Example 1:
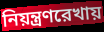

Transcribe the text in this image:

নিয়ন্ত্রণরেখায়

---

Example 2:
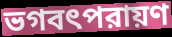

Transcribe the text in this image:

ভগবৎপরায়ণ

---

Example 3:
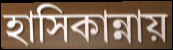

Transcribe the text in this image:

হাসিকান্নায়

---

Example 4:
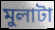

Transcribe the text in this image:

মুলাটা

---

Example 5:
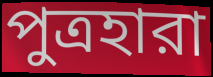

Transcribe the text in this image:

পুত্রহারা